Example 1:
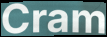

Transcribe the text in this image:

Cram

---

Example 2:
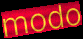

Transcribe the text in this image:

modo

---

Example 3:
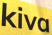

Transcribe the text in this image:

kiva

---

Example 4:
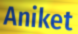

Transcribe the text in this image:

Aniket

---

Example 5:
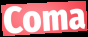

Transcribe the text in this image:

Coma